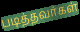
படித்தவர்கள்